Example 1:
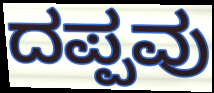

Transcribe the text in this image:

ದಪ್ಪವು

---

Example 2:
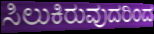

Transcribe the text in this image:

ಸಿಲುಕಿರುವುದರಿಂದ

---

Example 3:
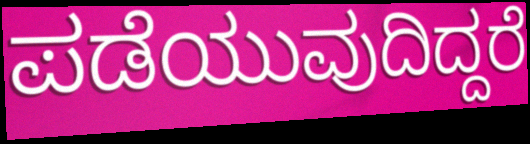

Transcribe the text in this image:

ಪಡೆಯುವುದಿದ್ದರೆ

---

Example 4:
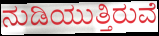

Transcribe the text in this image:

ನುಡಿಯುತ್ತಿರುವೆ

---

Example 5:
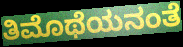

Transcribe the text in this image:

ತಿಮೊಥೆಯನಂತೆ